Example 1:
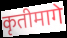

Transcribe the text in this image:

कृतीमागे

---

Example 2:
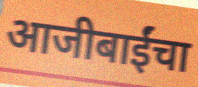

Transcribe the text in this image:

आजीबाईंचा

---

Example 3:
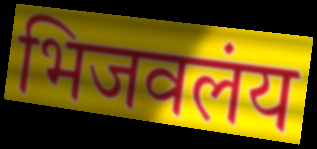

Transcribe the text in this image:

भिजवलंय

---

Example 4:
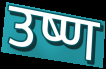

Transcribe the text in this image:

उष्ण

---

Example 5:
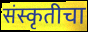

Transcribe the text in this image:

संस्कृतीचा